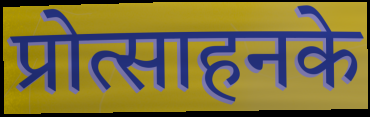
प्रोत्साहनके